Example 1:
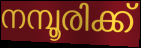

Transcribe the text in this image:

നമ്പൂരിക്ക്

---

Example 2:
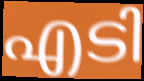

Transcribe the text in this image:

എടി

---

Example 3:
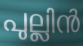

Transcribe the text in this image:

പുല്ലിൻ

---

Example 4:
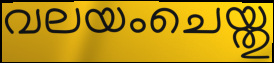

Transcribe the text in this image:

വലയംചെയ്തു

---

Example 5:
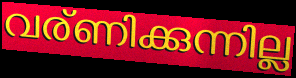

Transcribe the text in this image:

വര്ണിക്കുന്നില്ല